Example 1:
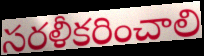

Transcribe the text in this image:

సరళీకరించాలి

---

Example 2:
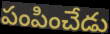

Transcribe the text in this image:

పంపించేడు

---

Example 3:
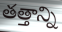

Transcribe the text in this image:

తత్తాన్ని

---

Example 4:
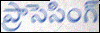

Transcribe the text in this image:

ప్రాసెసింగ్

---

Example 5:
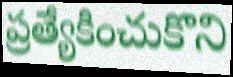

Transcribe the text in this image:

ప్రత్యేకించుకొని